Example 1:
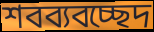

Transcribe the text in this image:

শবব্যবচ্ছেদ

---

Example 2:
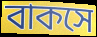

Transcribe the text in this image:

বাকসে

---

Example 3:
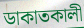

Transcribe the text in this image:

ডাকাতকালী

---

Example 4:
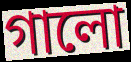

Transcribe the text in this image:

গালো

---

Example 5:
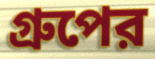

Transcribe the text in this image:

গ্রুপের